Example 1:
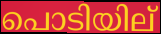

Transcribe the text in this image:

പൊടിയില്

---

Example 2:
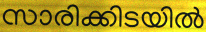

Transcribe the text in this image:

സാരിക്കിടയിൽ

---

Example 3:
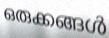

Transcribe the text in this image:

ഒരുക്കങ്ങൾ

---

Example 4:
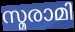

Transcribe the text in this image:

സ്മരാമി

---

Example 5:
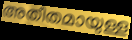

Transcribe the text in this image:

അതീതമായുള്ള